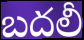
బదలీ